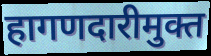
हागणदारीमुक्त